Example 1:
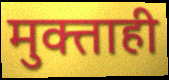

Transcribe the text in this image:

मुक्ताही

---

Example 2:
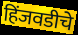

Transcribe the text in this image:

हिंजवडीचे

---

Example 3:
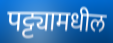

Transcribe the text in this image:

पट्ट्यामधील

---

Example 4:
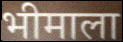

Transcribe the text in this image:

भीमाला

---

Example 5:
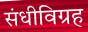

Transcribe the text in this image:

संधीविग्रह